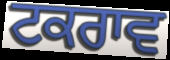
ਟਕਰਾਵ